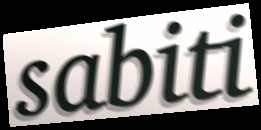
sabiti